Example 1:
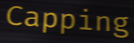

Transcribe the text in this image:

Capping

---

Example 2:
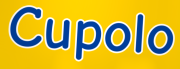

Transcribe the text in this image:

Cupolo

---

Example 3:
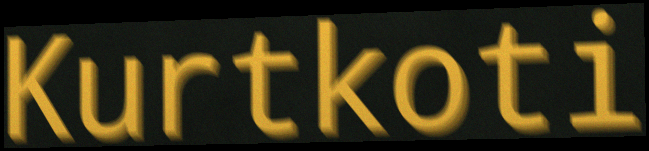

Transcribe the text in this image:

Kurtkoti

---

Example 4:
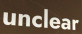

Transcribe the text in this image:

unclear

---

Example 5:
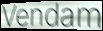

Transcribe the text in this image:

Vendam